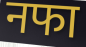
नफा